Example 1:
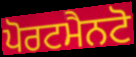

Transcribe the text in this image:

ਪੋਰਟਮੈਨਟੋ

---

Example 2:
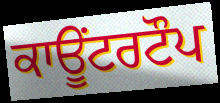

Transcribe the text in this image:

ਕਾਊਂਟਰਟੌਪ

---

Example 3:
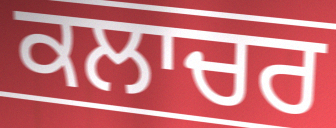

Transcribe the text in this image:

ਕਲਾਚਰ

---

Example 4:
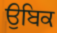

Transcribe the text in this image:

ਉਬਿਕ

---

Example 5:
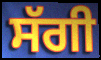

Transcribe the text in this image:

ਸੱਗੀ